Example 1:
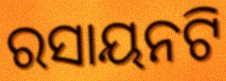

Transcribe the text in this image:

ରସାୟନଟି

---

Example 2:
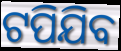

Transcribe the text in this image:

ଟପିଯିବ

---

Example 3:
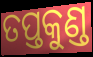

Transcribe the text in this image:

ତପ୍ତକୁଣ୍ଡ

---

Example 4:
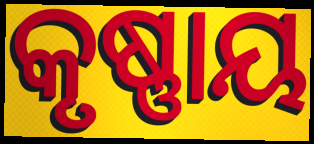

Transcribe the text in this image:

କୃଷ୍ଣାୟ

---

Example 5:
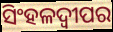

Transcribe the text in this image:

ସିଂହଳଦ୍ୱୀପର